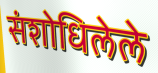
संशोधिलेले